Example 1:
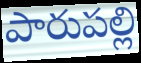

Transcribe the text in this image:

పారుపల్లి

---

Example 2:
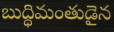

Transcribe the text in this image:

బుద్ధిమంతుడైన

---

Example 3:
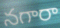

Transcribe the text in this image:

నగారా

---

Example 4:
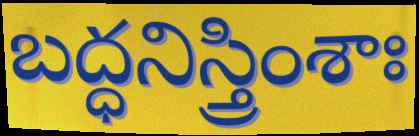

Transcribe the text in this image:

బద్ధనిస్త్రింశాః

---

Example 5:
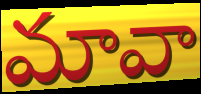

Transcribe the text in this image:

మావా